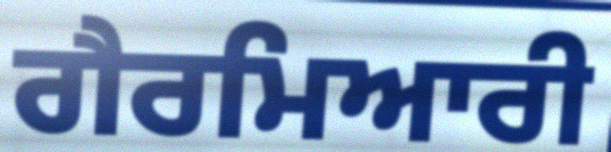
ਗੈਰਮਿਆਰੀ